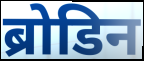
ब्रोडिन